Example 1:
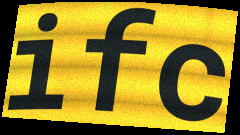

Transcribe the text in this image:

ifc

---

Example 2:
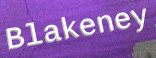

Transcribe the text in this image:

Blakeney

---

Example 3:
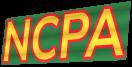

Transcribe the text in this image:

NCPA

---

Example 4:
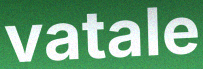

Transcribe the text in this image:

vatale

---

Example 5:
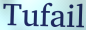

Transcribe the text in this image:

Tufail